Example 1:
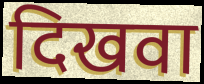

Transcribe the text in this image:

दिखवा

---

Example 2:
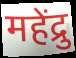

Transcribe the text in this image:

महेंद्रु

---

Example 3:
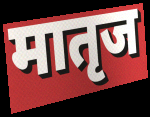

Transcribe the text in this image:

मातृज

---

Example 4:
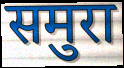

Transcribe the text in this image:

समुरा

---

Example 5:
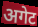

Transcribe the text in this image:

अगेट